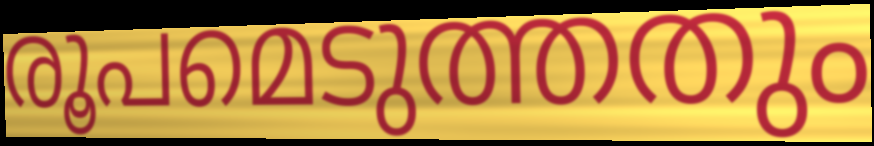
രൂപമെടുത്തതും